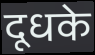
दूधके